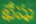
ఖేషు